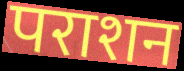
पराशन